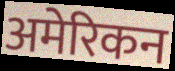
अमेरिकन